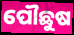
ପୌଛୁଷ